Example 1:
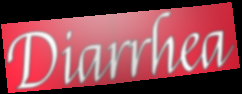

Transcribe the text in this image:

Diarrhea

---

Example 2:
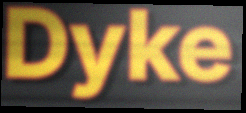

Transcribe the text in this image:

Dyke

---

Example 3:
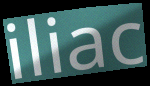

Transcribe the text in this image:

iliac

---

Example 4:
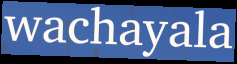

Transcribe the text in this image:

wachayala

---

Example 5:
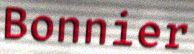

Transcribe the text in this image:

Bonnier